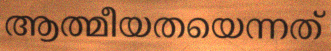
ആത്മീയതയെന്നത്